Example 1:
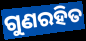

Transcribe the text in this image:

ଗୁଣରହିତ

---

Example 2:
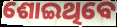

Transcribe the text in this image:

ଶୋଇଥିବେ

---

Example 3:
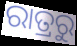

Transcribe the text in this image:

ରାତ୍ରରୁ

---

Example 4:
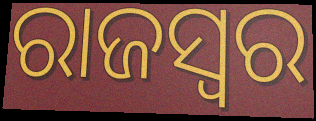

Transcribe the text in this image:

ରାଜସ୍ୱର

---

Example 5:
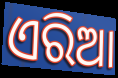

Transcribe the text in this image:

ଏରିଆ